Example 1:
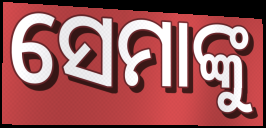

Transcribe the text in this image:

ସେମାଙ୍କୁ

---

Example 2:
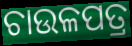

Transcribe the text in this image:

ଚାଉଳପତ୍ର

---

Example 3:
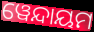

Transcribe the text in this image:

ୱେନ୍ଦାୟମ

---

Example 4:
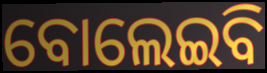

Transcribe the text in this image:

ବୋଲେଇବି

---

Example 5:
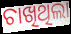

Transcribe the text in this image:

ଚାଖିଥିଲା